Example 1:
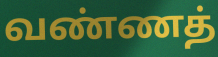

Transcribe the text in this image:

வண்ணத்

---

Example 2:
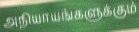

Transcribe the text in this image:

அநியாயங்களுக்கும்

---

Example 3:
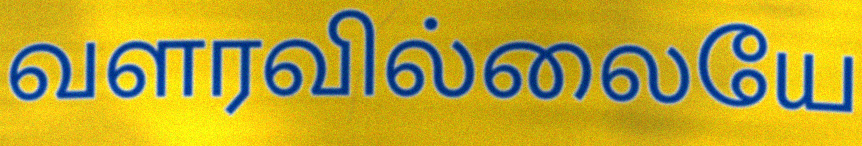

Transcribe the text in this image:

வளரவில்லையே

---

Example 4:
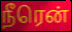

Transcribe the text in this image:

நீரென்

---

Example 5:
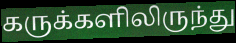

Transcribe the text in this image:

கருக்களிலிருந்து